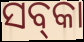
ସବ୍‌କା